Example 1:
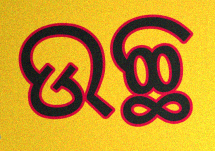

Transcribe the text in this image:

ଉଚ୍ଛ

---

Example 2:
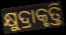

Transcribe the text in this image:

କ୍ଷୁଦ୍ରାକୃତ୍ତି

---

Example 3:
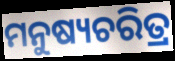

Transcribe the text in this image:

ମନୁଷ୍ୟଚରିତ୍ର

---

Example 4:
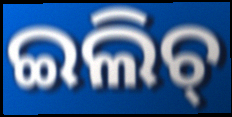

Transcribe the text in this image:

ଇଲିଚ୍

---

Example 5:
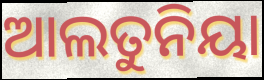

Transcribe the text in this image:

ଆଲତୁନିୟା